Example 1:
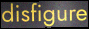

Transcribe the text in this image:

disfigure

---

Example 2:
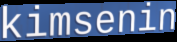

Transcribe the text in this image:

kimsenin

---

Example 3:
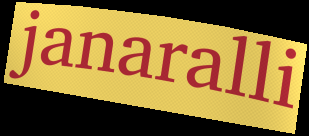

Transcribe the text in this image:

janaralli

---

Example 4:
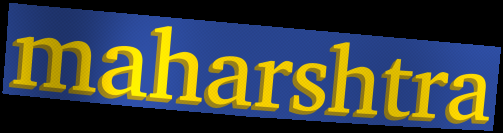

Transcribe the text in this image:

maharshtra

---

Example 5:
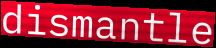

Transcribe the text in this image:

dismantle